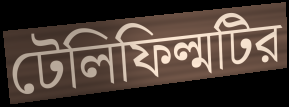
টেলিফিল্মটির